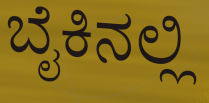
ಬೈಕಿನಲ್ಲಿ